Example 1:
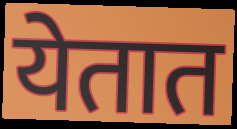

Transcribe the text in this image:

येतात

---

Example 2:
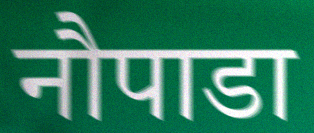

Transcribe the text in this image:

नौपाडा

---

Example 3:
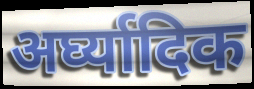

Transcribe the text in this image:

अर्घ्यादिक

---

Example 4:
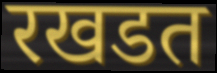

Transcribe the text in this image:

रखडत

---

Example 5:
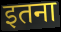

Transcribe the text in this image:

इतना